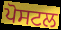
ਪੋਸਟਲ